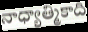
నాధ్యాత్మికాది